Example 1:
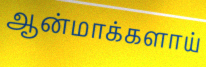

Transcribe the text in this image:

ஆன்மாக்களாய்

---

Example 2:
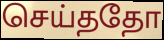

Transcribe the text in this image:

செய்ததோ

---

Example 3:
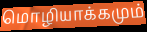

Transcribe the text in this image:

மொழியாக்கமும்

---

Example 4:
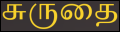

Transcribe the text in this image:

சுருதை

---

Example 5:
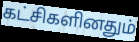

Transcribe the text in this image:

கட்சிகளினதும்